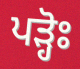
ਪੜ੍ਹੋਃ